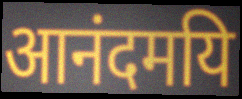
आनंदमयि